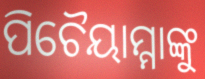
ପିଚୈୟାମ୍ମାଙ୍କୁ